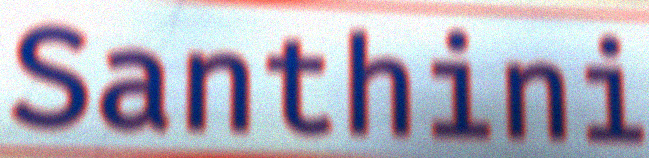
Santhini